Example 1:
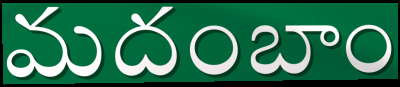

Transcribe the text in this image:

మదంబాం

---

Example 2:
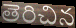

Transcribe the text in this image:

తెరిచిన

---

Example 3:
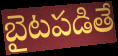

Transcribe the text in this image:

బైటపడితే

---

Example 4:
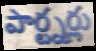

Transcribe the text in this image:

పార్ట్నర్లు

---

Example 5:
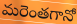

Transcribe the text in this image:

మరెంతగానో